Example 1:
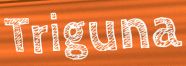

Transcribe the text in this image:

Triguna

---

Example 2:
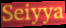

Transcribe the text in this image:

Seiyya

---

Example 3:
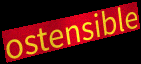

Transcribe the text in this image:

ostensible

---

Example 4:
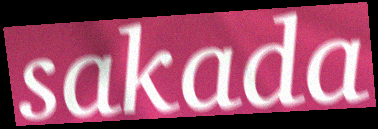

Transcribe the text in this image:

sakada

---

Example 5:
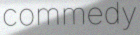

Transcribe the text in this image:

commedy